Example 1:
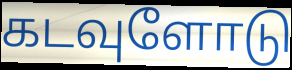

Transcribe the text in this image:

கடவுளோடு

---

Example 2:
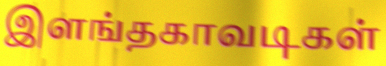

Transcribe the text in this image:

இளங்தகாவடிகள்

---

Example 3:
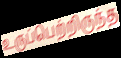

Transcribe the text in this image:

உருப்பெற்றிருந்த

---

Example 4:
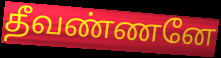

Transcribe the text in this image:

தீவண்ணனே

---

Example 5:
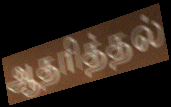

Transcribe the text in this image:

ஆதரித்தல்